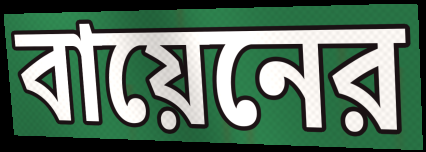
বায়েনের